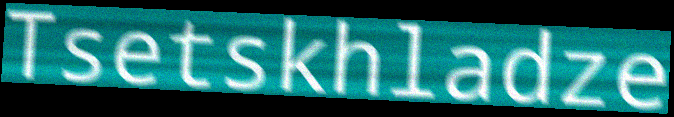
Tsetskhladze